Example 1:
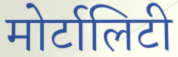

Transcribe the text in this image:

मोर्टालिटी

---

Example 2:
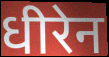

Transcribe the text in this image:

धीरेन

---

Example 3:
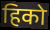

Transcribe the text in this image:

हिको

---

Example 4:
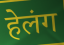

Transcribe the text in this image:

हेलंग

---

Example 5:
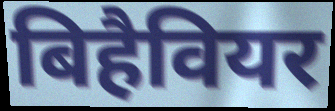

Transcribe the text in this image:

बिहैवियर